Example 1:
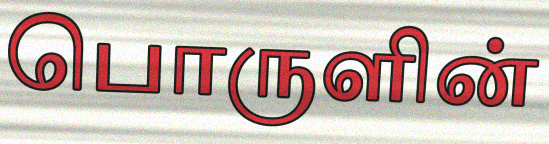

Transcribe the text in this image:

பொருளின்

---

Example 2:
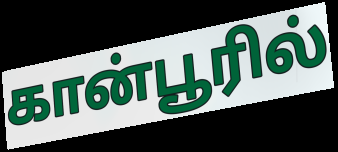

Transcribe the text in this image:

கான்பூரில்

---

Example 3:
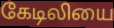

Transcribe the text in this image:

கேடிலியை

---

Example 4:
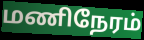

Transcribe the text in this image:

மணிநேரம்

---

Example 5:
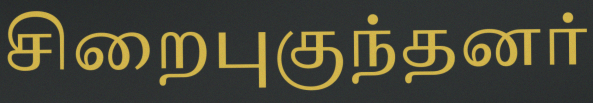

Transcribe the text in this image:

சிறைபுகுந்தனர்